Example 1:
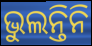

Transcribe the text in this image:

ଭୁଲନ୍ତିନି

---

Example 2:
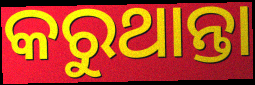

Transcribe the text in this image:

କରୁଥାନ୍ତା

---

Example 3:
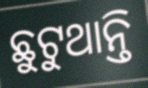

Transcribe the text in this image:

ଛୁଟୁଥାନ୍ତି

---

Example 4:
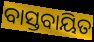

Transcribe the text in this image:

ବାସ୍ତବାୟିତ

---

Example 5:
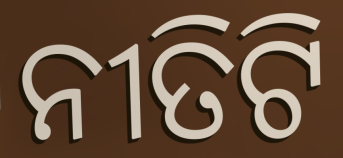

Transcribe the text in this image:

ନୀତିଟି